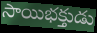
సాయిభక్తుడు